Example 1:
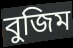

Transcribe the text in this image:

বুজিম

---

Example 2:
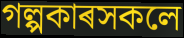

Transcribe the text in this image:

গল্পকাৰসকলে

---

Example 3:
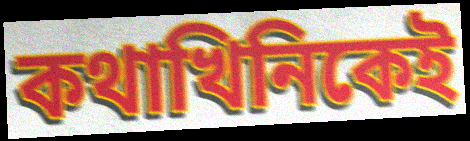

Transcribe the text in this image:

কথাখিনিকেই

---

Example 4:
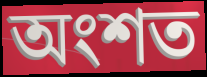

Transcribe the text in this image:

অংশত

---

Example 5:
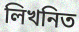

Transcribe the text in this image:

লিখনিত